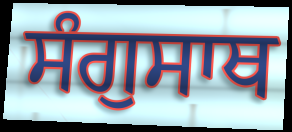
ਸੰਗੁਸਾਥ